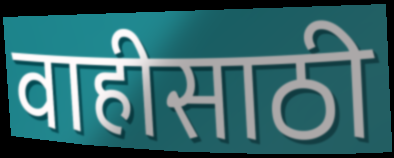
वाहीसाठी